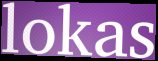
lokas